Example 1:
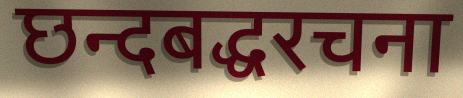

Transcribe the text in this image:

छन्दबद्धरचना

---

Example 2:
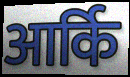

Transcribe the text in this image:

आर्कि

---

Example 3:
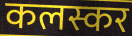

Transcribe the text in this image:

कलस्कर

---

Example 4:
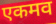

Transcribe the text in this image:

एकमव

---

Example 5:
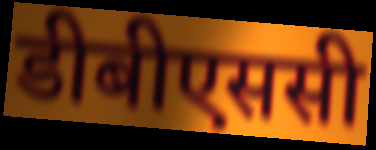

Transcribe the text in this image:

डीबीएससी